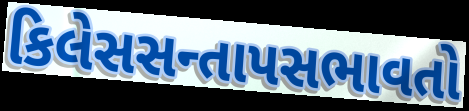
કિલેસસન્તાપસભાવતો